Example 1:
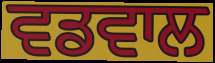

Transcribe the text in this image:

ਵਡਵਾਲ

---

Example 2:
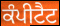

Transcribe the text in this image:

ਕੰਪੀਟੈਟ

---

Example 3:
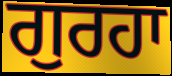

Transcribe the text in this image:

ਗੁਰਹਾ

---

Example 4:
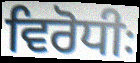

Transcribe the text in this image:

ਵਿਰੋਧੀਃ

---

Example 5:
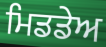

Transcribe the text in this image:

ਮਿਡਡੇਅ